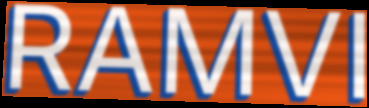
RAMVI